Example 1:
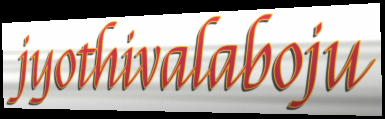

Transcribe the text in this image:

jyothivalaboju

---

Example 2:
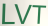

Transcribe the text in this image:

LVT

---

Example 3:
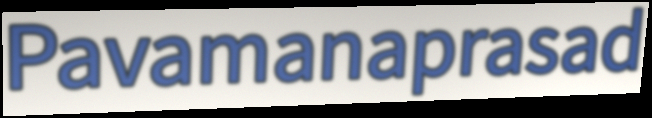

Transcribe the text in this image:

Pavamanaprasad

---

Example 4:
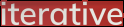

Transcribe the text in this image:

iterative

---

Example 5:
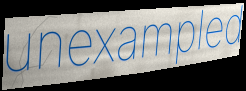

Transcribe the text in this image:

unexampled